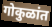
गोकुळांत